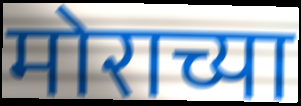
मोराच्या